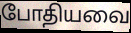
போதியவை